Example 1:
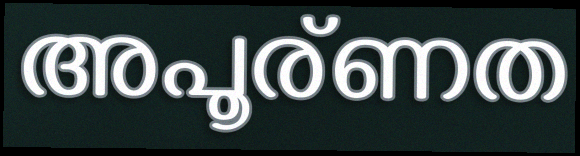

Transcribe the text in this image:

അപൂര്ണത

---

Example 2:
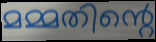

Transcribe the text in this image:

മമ്മതിന്റെ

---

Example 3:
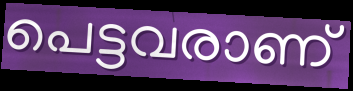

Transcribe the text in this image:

പെട്ടവരാണ്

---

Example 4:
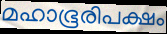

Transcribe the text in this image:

മഹാഭൂരിപക്ഷം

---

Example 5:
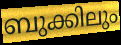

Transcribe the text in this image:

ബുക്കിലും